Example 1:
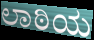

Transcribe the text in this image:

ಲಾಠಿಯ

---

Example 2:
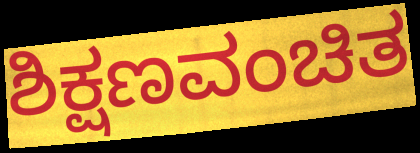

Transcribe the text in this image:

ಶಿಕ್ಷಣವಂಚಿತ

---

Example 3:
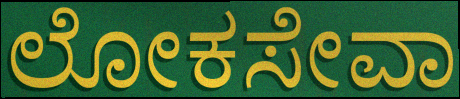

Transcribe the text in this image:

ಲೋಕಸೇವಾ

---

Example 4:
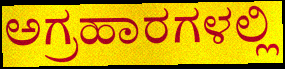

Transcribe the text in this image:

ಅಗ್ರಹಾರಗಳಲ್ಲಿ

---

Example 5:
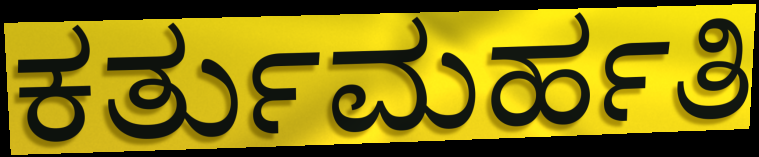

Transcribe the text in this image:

ಕರ್ತುಮರ್ಹತಿ